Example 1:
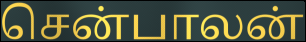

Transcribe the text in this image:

சென்பாலன்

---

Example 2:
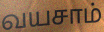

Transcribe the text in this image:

வயசாம்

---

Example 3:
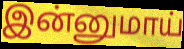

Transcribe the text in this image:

இன்னுமாய்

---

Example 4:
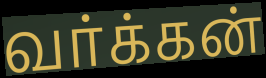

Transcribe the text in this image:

வர்க்கன்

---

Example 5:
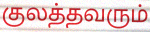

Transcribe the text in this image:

குலத்தவரும்